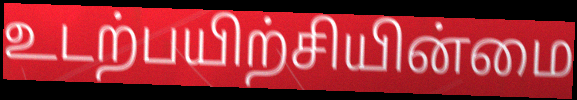
உடற்பயிற்சியின்மை